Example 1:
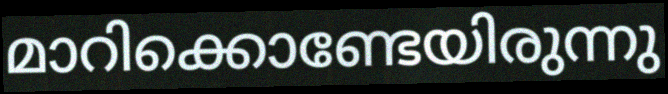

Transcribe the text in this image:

മാറിക്കൊണ്ടേയിരുന്നു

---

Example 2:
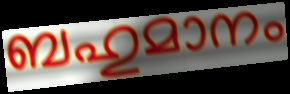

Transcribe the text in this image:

ബഹുമാനം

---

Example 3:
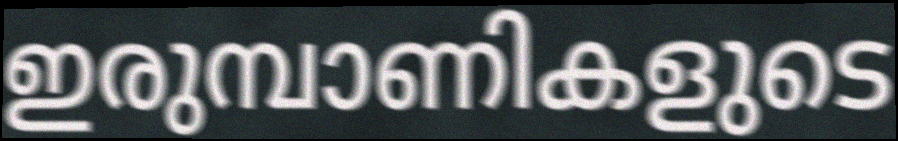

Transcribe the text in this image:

ഇരുമ്പാണികളുടെ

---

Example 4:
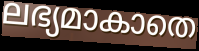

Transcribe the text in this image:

ലഭ്യമാകാതെ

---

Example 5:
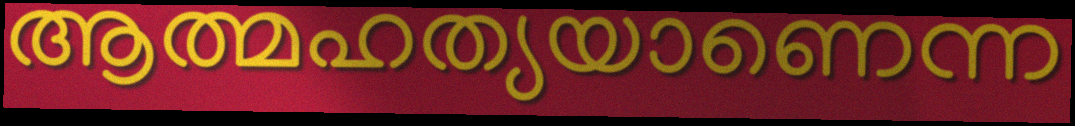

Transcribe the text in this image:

ആത്മഹത്യയാണെന്ന